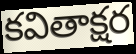
కవితాక్షర